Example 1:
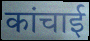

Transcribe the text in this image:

कांचाई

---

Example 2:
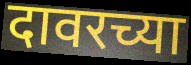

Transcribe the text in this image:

दावरच्या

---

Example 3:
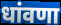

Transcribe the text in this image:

धांवणा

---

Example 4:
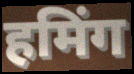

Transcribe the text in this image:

हमिंग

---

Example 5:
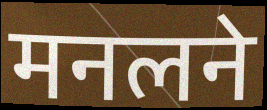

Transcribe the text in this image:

मनलने